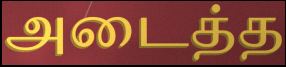
அடைத்த